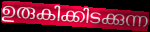
ഉരുകിക്കിടക്കുന്ന